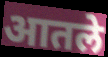
आतले